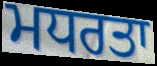
ਮਧਰਤਾ